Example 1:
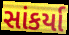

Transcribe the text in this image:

સાંકર્યા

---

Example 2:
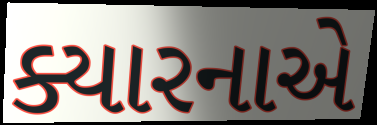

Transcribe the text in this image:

ક્યારનાએ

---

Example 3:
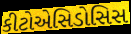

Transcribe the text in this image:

કીટોએસિડોસિસ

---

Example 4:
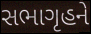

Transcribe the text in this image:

સભાગૃહને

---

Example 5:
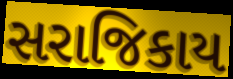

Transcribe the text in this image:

સરાજિકાય